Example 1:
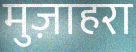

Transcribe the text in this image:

मुज़ाहरा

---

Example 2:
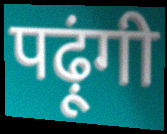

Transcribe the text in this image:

पढ़ूंगी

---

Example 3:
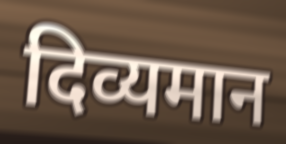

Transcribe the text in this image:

दिव्यमान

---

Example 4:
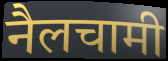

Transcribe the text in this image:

नैलचामी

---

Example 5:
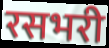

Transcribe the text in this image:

रसभरी